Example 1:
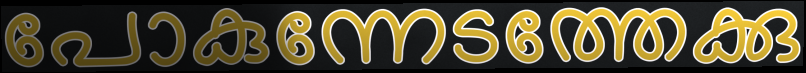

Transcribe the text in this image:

പോകുന്നേടത്തേക്കു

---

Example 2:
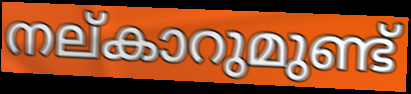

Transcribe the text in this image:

നല്കാറുമുണ്ട്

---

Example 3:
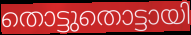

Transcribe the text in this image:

തൊട്ടുതൊട്ടായി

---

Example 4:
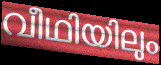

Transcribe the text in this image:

വീഥിയിലും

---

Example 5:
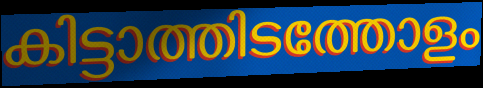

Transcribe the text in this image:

കിട്ടാത്തിടത്തോളം